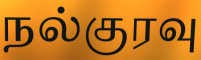
நல்குரவு